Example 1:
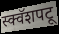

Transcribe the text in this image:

स्क्वॅशपटू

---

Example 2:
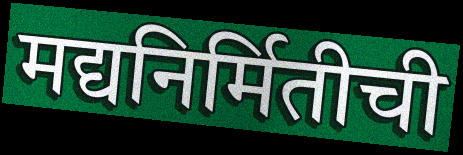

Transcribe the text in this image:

मद्यनिर्मितीची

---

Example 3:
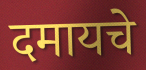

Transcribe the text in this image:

दमायचे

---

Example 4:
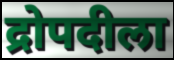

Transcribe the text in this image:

द्रोपदीला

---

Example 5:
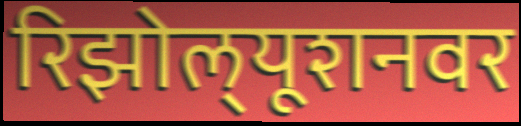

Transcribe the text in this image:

रिझोल्यूशनवर